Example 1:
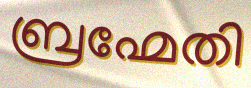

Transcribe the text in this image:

ബ്രഹ്മേതി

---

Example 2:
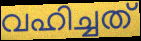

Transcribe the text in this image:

വഹിച്ചത്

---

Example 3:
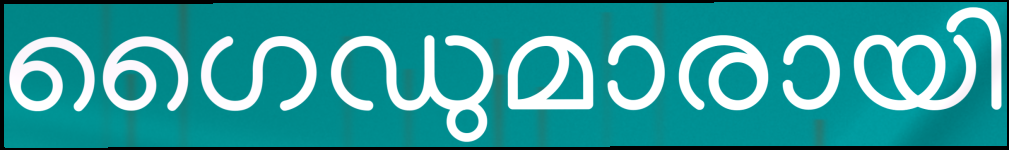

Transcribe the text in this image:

ഗൈഡുമാരായി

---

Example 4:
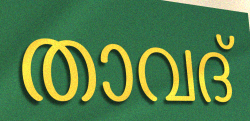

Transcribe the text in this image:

താവദ്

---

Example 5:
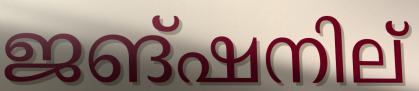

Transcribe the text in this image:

ജങ്ഷനില്